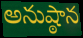
అనుష్ఠాన